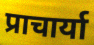
प्राचार्या